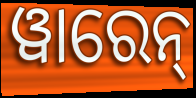
ୱାରେନ୍